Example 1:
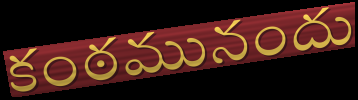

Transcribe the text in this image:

కంఠమునందు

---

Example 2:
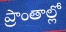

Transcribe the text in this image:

ప్రాంతాల్లో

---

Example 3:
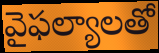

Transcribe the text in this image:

వైఫల్యాలతో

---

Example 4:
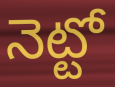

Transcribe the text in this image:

నెట్టో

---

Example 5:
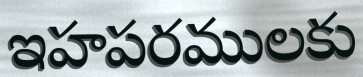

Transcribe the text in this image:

ఇహపరములకు